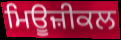
ਮਿਊਜ਼ੀਕਲ